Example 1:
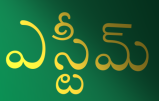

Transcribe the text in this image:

ఎస్టీమ్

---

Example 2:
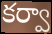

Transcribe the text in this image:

కర్వా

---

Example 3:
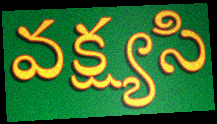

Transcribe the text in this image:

వక్ష్యసి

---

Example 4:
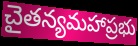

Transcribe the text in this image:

చైతన్యమహాప్రభు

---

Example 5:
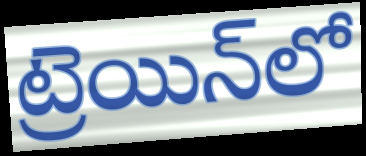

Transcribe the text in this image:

ట్రెయిన్‌లో